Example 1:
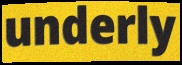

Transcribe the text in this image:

underly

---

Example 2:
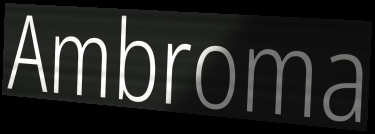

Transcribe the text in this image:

Ambroma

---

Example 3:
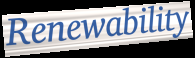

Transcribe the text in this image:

Renewability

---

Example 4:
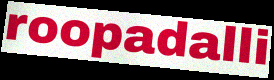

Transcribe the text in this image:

roopadalli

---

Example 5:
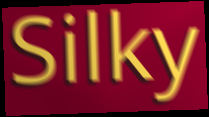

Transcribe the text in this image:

Silky